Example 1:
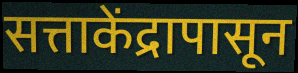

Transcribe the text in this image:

सत्ताकेंद्रापासून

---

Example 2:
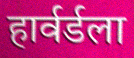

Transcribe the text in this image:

हार्वर्डला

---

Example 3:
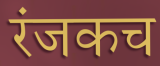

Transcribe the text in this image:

रंजकच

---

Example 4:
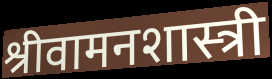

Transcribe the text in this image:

श्रीवामनशास्त्री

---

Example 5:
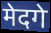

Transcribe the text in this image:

मेदगे